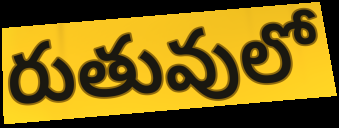
రుతువులో